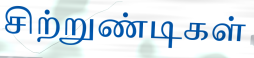
சிற்றுண்டிகள்